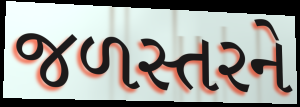
જળસ્તરને